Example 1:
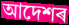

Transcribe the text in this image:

আদেশৰ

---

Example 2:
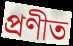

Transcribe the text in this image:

প্ৰণীত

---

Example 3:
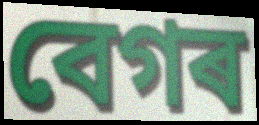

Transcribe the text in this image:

বেগৰ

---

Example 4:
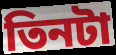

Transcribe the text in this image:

তিনটা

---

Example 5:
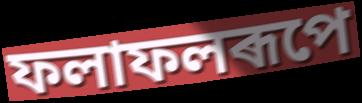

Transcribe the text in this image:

ফলাফলৰূপে